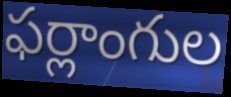
ఫర్లాంగుల